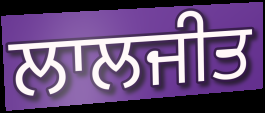
ਲਾਲਜੀਤ